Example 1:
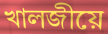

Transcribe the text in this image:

খালজীয়ে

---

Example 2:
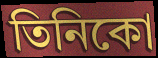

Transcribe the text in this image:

তিনিকো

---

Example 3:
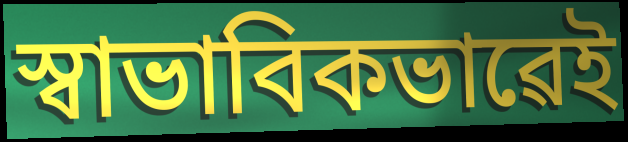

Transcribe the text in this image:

স্বাভাবিকভাৱেই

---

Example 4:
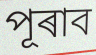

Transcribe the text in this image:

পূৰাব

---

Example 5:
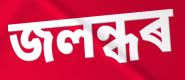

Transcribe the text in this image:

জলন্ধৰ